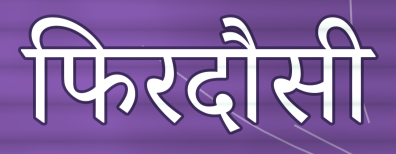
फिरदौसी